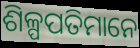
ଶିଳ୍ପପତିମାନେ